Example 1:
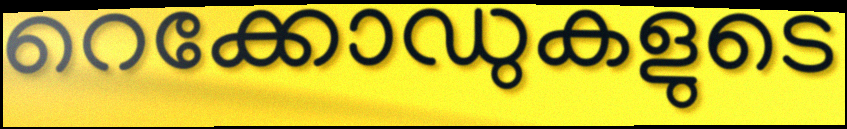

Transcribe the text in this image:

റെക്കോഡുകളുടെ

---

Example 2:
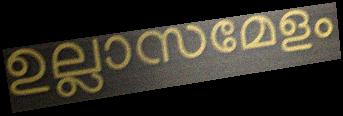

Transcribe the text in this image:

ഉല്ലാസമേളം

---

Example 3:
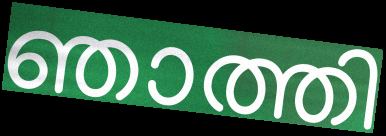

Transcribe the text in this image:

ഞാത്തി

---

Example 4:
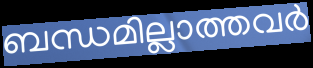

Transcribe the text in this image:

ബന്ധമില്ലാത്തവർ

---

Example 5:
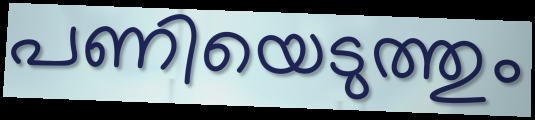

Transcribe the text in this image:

പണിയെടുത്തും